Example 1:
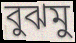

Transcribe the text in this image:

বুঝমু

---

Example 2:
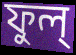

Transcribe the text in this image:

ফুল্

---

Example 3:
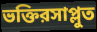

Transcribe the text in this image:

ভক্তিরসাপ্লুত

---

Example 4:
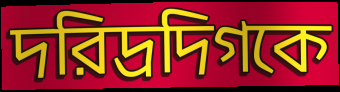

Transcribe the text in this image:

দরিদ্রদিগকে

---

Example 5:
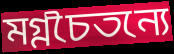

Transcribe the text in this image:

মগ্নচৈতন্যে